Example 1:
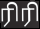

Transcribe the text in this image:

ரிரி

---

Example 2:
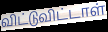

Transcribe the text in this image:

விட்டுவிட்டாள்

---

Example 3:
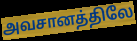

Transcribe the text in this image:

அவசானத்திலே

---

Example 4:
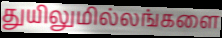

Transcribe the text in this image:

துயிலுமில்லங்களை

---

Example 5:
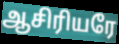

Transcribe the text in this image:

ஆசிரியரே